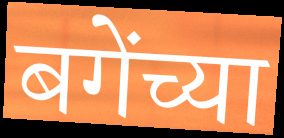
बगेंच्या